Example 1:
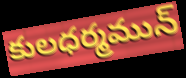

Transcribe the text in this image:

కులధర్మమున్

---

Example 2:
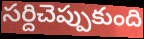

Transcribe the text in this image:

సర్దిచెప్పుకుంది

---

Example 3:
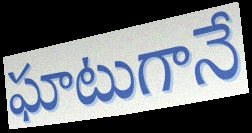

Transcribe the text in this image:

ఘాటుగానే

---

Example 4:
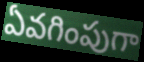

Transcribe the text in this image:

ఏవగింపుగా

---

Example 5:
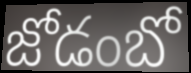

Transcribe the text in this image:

జోడంబో